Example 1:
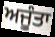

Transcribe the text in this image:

ਅਜੂੰਤਾ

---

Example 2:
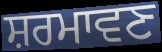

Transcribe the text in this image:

ਸ਼ਰਮਾਵਣ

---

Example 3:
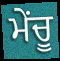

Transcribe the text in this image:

ਮੇਂਚੂ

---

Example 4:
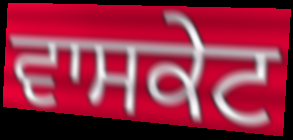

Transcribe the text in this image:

ਵਾਸਕੇਟ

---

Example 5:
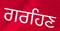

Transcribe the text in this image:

ਗਰਹਿਣ